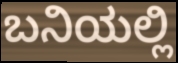
ಬನಿಯಲ್ಲಿ